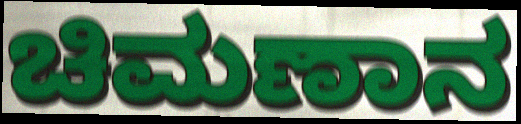
ಚಿಮಣಾನ